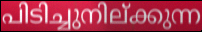
പിടിച്ചുനില്ക്കുന്ന